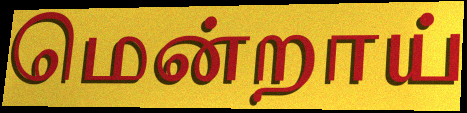
மென்றாய்